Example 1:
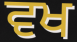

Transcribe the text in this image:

ਵਖ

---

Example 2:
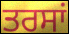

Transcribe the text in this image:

ਤਰਸਾਂ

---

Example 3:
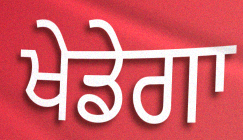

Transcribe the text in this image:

ਖੇਡੇਗਾ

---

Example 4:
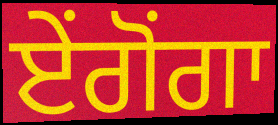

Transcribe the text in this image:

ਏਂਗੋਂਗਾ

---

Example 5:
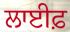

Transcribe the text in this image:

ਲਾਈਫ਼